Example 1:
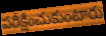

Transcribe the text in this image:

పరీక్షించుకుంటారు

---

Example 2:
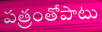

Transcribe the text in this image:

పత్రంతోపాటు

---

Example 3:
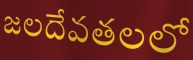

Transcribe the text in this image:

జలదేవతలలో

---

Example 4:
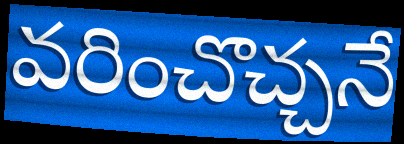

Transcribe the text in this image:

వరించొచ్చనే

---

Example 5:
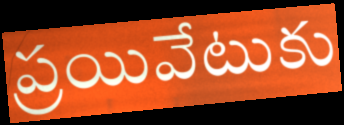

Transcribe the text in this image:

ప్రయివేటుకు